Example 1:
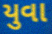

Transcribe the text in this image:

યુવા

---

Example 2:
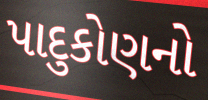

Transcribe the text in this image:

પાદુકોણનો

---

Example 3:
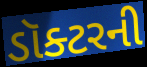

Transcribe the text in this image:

ડૉક્ટરની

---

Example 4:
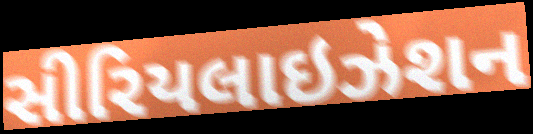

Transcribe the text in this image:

સીરિયલાઇઝેશન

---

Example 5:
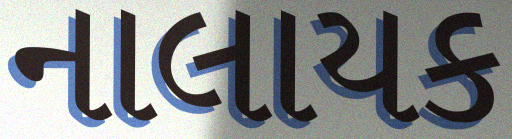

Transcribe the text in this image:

નાલાયક